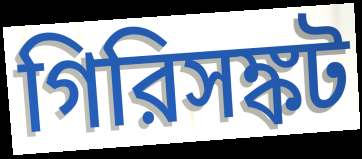
গিরিসঙ্কট